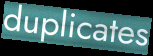
duplicates